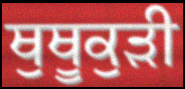
ਥੁਥੂਕੁੜੀ